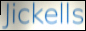
Jickells